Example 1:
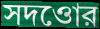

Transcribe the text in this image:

সদওোর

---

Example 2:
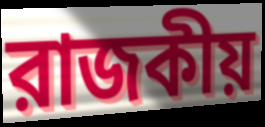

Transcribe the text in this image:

রাজকীয়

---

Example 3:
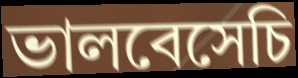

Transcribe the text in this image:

ভালবেসেচি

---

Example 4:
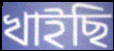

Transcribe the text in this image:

খাইছি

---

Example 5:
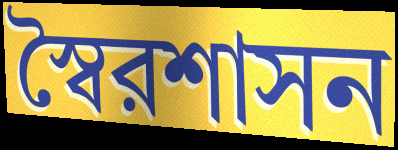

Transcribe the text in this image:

স্বৈরশাসন